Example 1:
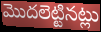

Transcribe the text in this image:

మొదలెట్టినట్లు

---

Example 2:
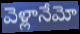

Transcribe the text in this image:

వెళ్లానేమో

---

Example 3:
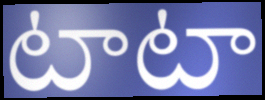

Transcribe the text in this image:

టాటా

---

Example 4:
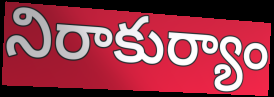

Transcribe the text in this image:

నిరాకుర్యాం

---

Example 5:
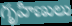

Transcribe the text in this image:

గృహిణులు